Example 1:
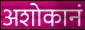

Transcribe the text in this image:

अशोकानं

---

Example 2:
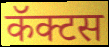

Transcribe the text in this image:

कॅक्टस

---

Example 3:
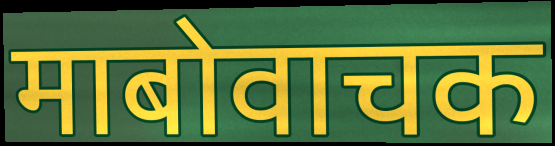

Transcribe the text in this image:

माबोवाचक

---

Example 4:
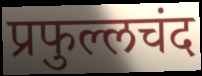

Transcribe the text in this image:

प्रफुल्लचंद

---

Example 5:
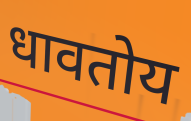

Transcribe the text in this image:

धावतोय